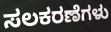
ಸಲಕರಣೆಗಳು